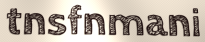
tnsfnmani